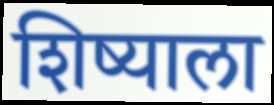
शिष्याला